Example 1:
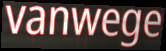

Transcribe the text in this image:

vanwege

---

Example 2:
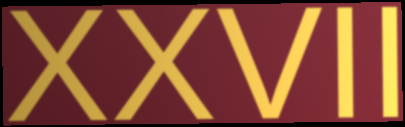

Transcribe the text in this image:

XXVII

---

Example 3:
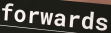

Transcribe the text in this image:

forwards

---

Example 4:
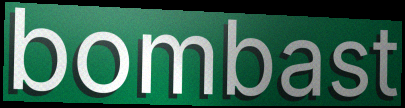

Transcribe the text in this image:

bombast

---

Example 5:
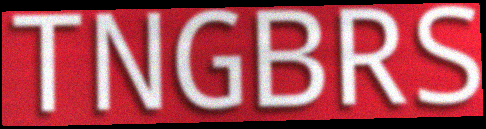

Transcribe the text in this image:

TNGBRS